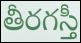
తీరగస్తీ